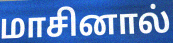
மாசினால்